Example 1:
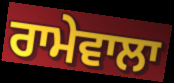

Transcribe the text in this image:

ਰਾਮੇਵਾਲਾ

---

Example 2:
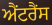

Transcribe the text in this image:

ਐਂਟਰੈਂਸ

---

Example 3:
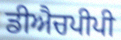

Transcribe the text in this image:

ਡੀਐਚਪੀਪੀ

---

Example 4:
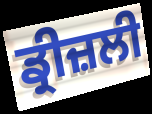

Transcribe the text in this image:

ਡ੍ਰੀਜ਼ਲੀ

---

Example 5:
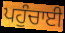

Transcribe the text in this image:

ਪਹੁੰਚਾਈ